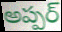
అప్పర్